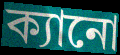
ক্যানো